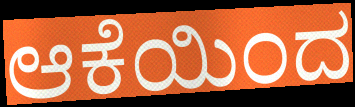
ಆಕೆಯಿಂದ